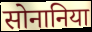
सोनानिया